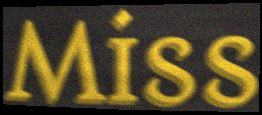
Miss